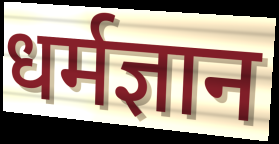
धर्मज्ञान